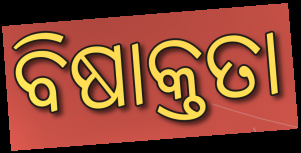
ବିଷାକ୍ତତା